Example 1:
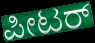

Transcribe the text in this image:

ಪೀಟರ್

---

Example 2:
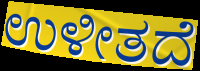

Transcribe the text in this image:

ಉಳೀತದೆ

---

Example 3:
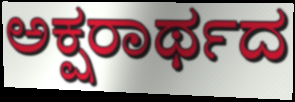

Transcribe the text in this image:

ಅಕ್ಷರಾರ್ಥದ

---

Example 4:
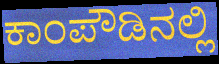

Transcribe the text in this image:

ಕಾಂಪೌಡಿನಲ್ಲಿ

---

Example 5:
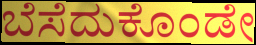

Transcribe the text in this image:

ಬೆಸೆದುಕೊಂಡೇ